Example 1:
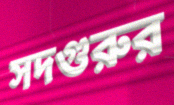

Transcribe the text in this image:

সদগুরুর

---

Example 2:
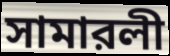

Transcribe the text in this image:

সামারলী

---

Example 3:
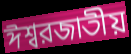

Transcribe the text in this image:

ঈশ্বরজাতীয়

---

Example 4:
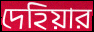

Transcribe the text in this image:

দেহিয়ার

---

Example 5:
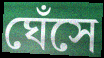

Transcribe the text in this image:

ঘেঁসে